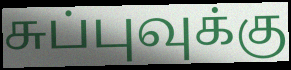
சுப்புவுக்கு